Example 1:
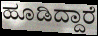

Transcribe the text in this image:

ಹೂಡಿದ್ದಾರೆ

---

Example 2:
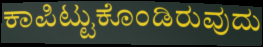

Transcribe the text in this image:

ಕಾಪಿಟ್ಟುಕೊಂಡಿರುವುದು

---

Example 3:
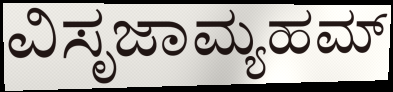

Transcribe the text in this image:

ವಿಸೃಜಾಮ್ಯಹಮ್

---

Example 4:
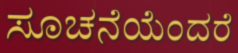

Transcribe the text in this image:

ಸೂಚನೆಯೆಂದರೆ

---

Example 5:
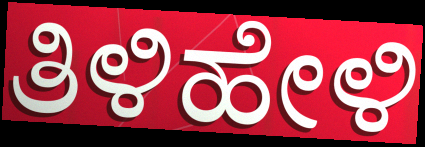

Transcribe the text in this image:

ತಿಳಿಹೇಳಿ